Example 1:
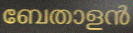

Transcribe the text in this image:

ബേതാളൻ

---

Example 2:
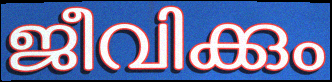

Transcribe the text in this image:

ജീവിക്കും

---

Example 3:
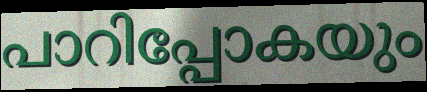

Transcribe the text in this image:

പാറിപ്പോകയും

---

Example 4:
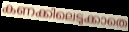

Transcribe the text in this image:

കണക്കിലെടുക്കാതെ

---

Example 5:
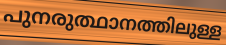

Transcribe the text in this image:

പുനരുത്ഥാനത്തിലുള്ള